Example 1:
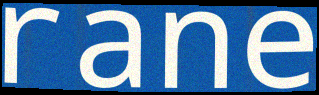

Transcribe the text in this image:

rane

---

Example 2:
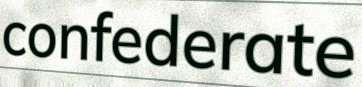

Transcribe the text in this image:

confederate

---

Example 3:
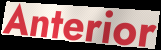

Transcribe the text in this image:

Anterior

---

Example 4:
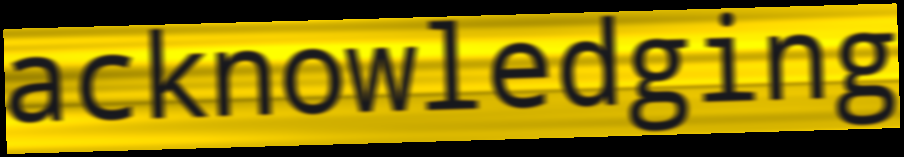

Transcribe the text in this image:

acknowledging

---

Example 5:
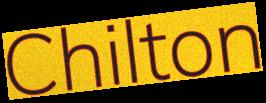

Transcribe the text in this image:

Chilton